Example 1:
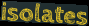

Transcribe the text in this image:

isolates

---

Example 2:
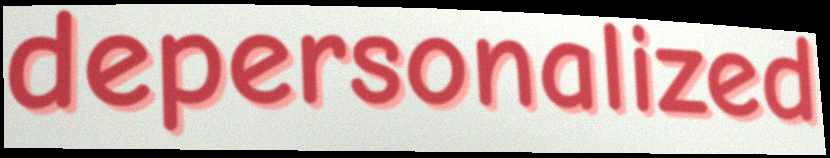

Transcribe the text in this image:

depersonalized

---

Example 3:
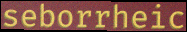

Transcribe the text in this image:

seborrheic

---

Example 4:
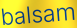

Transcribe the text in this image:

balsam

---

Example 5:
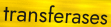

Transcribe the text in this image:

transferases